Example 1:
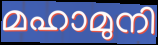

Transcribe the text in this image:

മഹാമുനി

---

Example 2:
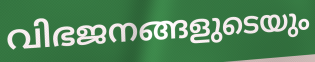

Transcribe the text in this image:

വിഭജനങ്ങളുടെയും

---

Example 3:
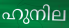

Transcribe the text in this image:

ഹുനില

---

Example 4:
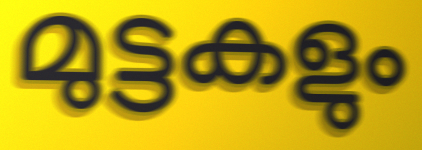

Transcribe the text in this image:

മുട്ടകളും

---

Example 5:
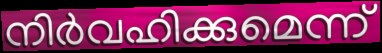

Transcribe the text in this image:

നിർവഹിക്കുമെന്ന്